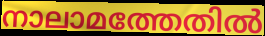
നാലാമത്തേതിൽ